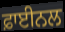
ਫ਼ਾਈਨਲ